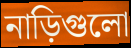
নাড়িগুলো